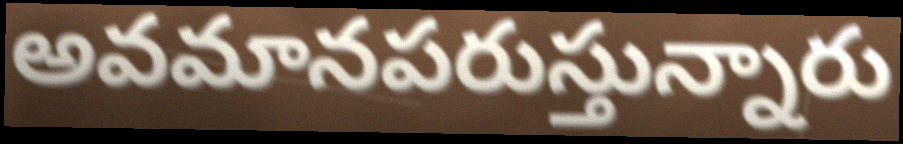
అవమానపరుస్తున్నారు